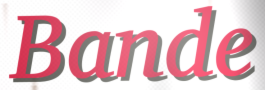
Bande